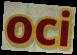
oci